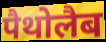
पैथोलैब